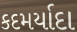
કદમર્યાદા